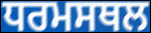
ਧਰਮਸਥਲ